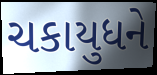
ચકાયુધને